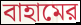
বাহামের